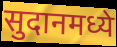
सुदानमध्ये